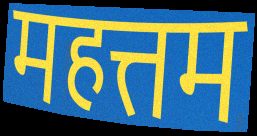
महत्तम